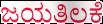
ಜಯತಿಲಕೆ